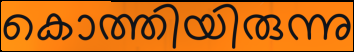
കൊത്തിയിരുന്നു